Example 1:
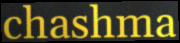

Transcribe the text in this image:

chashma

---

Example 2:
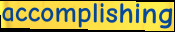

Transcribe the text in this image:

accomplishing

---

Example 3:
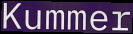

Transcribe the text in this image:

Kummer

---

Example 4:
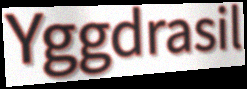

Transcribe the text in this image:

Yggdrasil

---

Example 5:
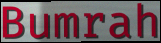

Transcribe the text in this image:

Bumrah